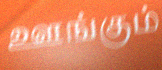
ஊங்கும்